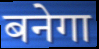
बनेगा